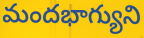
మందభాగ్యుని